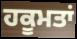
ਹਕੂਮਤਾਂ